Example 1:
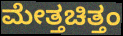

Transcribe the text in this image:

ಮೇತ್ತಚಿತ್ತಂ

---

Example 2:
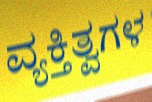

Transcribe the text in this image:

ವ್ಯಕ್ತಿತ್ವಗಳ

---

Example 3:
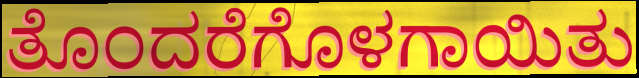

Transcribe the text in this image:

ತೊಂದರೆಗೊಳಗಾಯಿತು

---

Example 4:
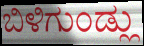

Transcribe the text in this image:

ಬಿಳಿಗುಂಡ್ಲು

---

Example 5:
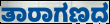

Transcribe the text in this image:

ತಾರಾಗಣದ